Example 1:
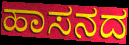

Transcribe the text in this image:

ಹಾಸನದ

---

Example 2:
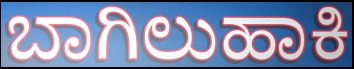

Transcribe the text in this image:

ಬಾಗಿಲುಹಾಕಿ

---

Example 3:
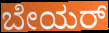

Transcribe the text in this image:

ಬೇಯರ್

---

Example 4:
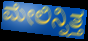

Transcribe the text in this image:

ಮೇಲಿನ್ನಿತ್ತ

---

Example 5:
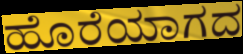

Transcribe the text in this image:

ಹೊರೆಯಾಗದ